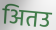
अितउ